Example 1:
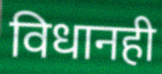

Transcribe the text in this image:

विधानही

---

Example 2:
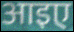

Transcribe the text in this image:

आइए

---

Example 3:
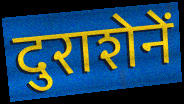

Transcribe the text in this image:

दुराशेनें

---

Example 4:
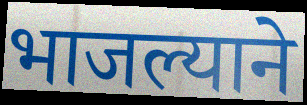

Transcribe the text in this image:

भाजल्याने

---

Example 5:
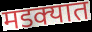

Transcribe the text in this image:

मडक्यात